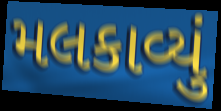
મલકાવ્યું